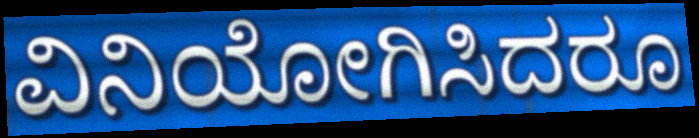
ವಿನಿಯೋಗಿಸಿದರೂ